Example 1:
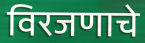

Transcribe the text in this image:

विरजणाचे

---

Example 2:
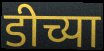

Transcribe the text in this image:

डीच्या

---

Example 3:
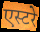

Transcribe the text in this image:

एस्टरे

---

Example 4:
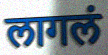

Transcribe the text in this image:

लागलं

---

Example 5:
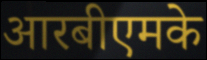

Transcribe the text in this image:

आरबीएमके